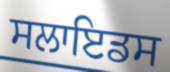
ਸਲਾਇਡਸ